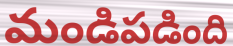
మండిపడింది